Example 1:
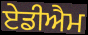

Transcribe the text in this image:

ਏਡੀਐਮ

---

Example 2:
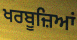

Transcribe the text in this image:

ਖਰਬੂਜ਼ਿਆਂ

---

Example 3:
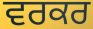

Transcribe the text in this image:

ਵਰਕਰ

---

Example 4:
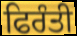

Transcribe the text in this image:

ਫਿਰੰਤੀ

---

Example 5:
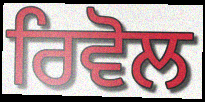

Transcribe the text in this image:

ਰਿਵੋਲ